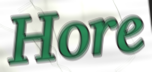
Hore